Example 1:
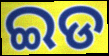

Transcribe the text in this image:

ଇଡ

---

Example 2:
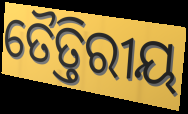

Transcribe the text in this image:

ତୈତ୍ତିରୀୟ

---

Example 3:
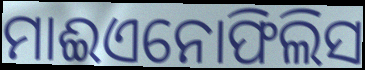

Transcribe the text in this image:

ମାଈଏନୋଫିଲିସ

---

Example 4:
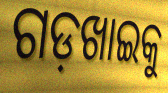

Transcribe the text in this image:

ଗଡ଼ଖାଇକୁ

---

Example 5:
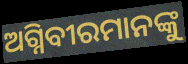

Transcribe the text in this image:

ଅଗ୍ନିବୀରମାନଙ୍କୁ